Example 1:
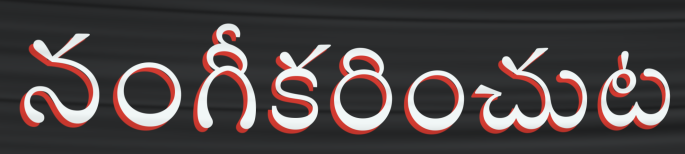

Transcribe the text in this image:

నంగీకరించుట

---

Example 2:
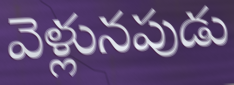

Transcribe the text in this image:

వెళ్లునపుడు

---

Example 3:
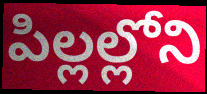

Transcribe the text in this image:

పిల్లల్లోని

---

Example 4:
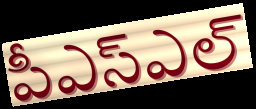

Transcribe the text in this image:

పీఎస్ఎల్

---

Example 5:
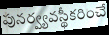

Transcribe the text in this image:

పునర్వ్యవస్థీకరించే